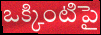
ఒక్కింటిపై